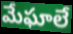
మేఘాలే